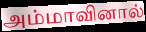
அம்மாவினால்